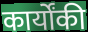
कार्योंकी